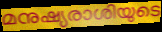
മനുഷ്യരാശിയുടെ